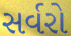
સર્વરો